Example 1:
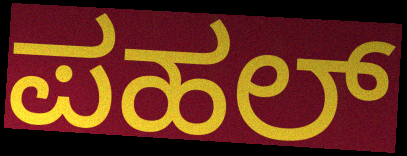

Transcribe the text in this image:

ಪಹಲ್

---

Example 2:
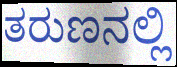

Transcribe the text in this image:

ತರುಣನಲ್ಲಿ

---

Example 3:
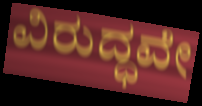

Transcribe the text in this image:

ವಿರುದ್ಧವೇ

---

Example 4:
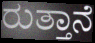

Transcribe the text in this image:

ರುತ್ತಾನೆ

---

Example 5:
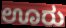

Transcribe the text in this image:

ಊರು